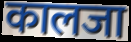
कालजा